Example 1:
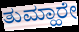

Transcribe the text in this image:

ತುಮ್ಹಾರೇ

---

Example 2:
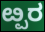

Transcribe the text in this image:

ೞ್ಪರ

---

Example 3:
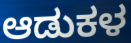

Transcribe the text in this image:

ಆಡುಕಳ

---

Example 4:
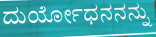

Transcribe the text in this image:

ದುರ್ಯೋಧನನನ್ನು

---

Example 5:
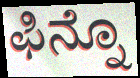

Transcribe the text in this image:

ಫಿನ್ನೊ